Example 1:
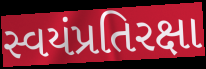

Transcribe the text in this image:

સ્વયંપ્રતિરક્ષા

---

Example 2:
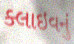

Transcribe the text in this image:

ક્લાઇવનું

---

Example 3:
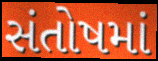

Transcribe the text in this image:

સંતોષમાં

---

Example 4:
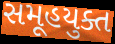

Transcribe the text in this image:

સમૂહયુક્ત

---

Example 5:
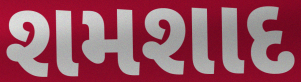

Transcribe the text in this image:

શમશાદ